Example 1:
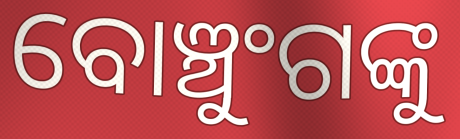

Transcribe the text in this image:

ବୋଞ୍ଚୁଂଗଙ୍କୁ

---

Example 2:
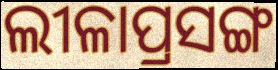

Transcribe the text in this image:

ଲୀଳାପ୍ରସଙ୍ଗ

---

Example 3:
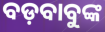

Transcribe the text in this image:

ବଡ଼ବାବୁଙ୍କ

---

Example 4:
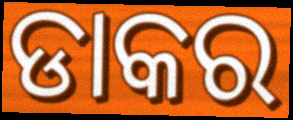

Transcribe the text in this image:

ଡାକର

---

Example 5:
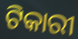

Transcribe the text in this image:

ଟିକାରୀ